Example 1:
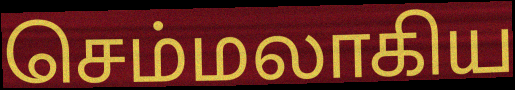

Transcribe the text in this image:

செம்மலாகிய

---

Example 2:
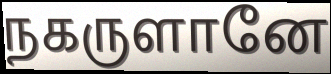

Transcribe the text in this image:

நகருளானே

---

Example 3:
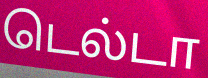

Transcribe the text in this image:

டெல்டா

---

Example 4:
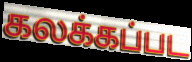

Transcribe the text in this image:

கலக்கப்பட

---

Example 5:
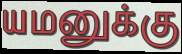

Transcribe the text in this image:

யமனுக்கு